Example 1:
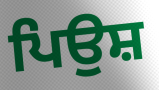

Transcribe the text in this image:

ਪਿਉਸ਼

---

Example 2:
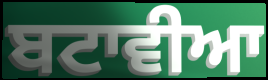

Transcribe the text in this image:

ਬਟਾਵੀਆ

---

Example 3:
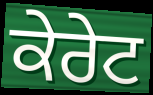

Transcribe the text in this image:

ਕੇਰੇਟ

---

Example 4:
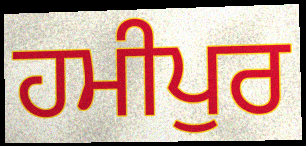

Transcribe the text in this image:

ਹਮੀਪੁਰ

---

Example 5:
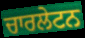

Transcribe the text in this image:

ਚਾਰਲੇਟਨ